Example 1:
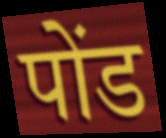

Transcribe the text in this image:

पोंड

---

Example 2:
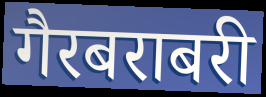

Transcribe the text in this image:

गैरबराबरी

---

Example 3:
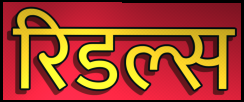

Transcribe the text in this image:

रिडल्स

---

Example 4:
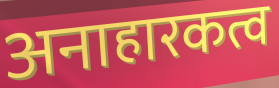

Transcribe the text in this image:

अनाहारकत्व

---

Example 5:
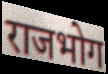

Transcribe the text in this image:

राजभोग